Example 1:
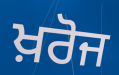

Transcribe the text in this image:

ਖ਼ਰੋਜ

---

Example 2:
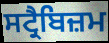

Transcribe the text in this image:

ਸਟ੍ਰੈਬਿਜ਼ਮ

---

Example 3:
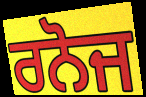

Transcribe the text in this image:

ਰਨੋਜ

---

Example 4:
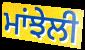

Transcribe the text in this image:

ਮਾਂਝੇਲੀ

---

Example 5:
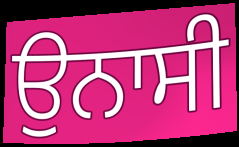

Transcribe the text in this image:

ਉਨਾਸੀ